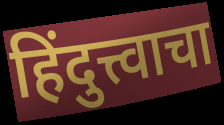
हिंदुत्त्वाचा